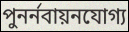
পুনর্নবায়নযোগ্য